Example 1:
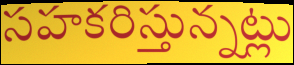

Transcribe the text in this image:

సహకరిస్తున్నట్లు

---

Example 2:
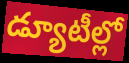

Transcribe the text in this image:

డ్యూటీల్లో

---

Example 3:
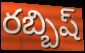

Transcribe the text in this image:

రబ్బిష్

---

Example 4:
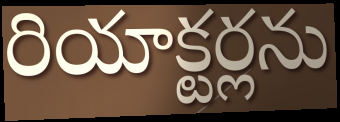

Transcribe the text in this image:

రియాక్టర్లను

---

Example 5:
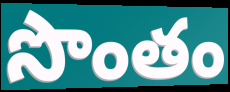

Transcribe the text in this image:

సొంతం